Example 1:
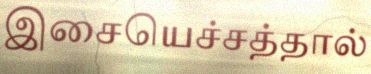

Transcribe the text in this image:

இசையெச்சத்தால்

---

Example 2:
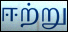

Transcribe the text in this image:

ஈற்று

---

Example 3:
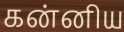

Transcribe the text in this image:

கன்னிய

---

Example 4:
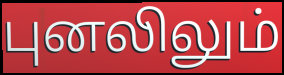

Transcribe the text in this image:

புனலிலும்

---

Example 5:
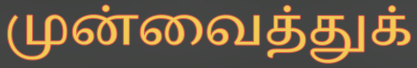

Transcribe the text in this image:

முன்வைத்துக்